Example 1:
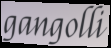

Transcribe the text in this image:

gangolli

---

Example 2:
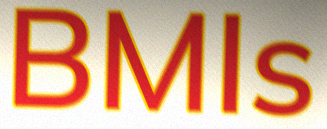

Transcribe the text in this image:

BMIs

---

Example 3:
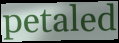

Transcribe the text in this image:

petaled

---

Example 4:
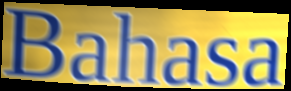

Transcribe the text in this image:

Bahasa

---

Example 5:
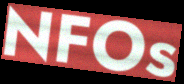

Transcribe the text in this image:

NFOs